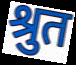
श्रुत